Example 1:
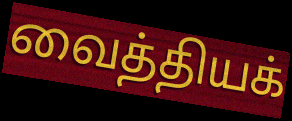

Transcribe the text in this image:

வைத்தியக்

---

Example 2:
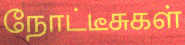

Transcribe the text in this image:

நோட்டீசுகள்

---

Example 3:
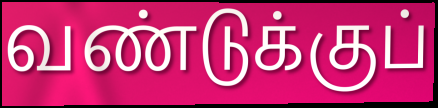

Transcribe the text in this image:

வண்டுக்குப்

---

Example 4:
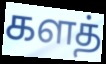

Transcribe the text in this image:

களத்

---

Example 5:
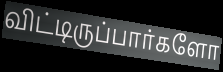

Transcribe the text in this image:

விட்டிருப்பார்களோ